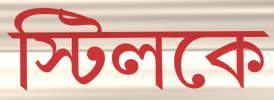
স্টিলকে